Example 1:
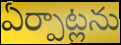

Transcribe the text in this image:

ఏర్పాట్లను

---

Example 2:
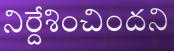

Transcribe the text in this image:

నిర్దేశించిందని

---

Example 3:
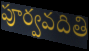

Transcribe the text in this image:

పూర్వవదితి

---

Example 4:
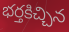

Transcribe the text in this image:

భర్తకిచ్చిన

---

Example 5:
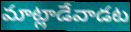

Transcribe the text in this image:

మాట్లాడేవాడట